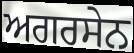
ਅਗਰਸੇਨ